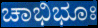
ಚಾಭಿಭೂಃ